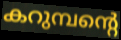
കറുമ്പന്റെ